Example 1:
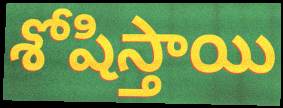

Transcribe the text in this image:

శోషిస్తాయి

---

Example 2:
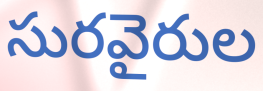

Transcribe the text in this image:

సురవైరుల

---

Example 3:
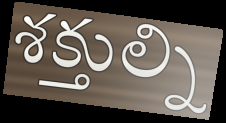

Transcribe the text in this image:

శక్తుల్ని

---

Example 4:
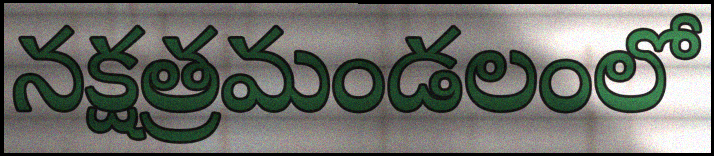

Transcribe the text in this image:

నక్షత్రమండలంలో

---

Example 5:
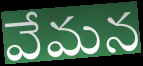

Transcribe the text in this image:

వేమన